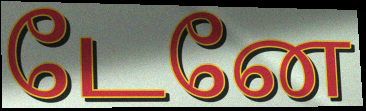
டேனே